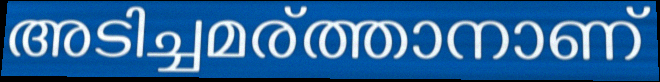
അടിച്ചമര്ത്താനാണ്